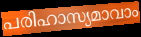
പരിഹാസ്യമാവാം